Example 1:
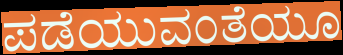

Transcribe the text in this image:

ಪಡೆಯುವಂತೆಯೂ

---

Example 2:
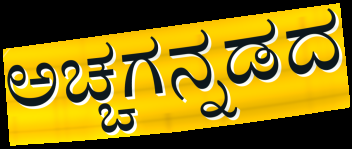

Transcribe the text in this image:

ಅಚ್ಚಗನ್ನಡದ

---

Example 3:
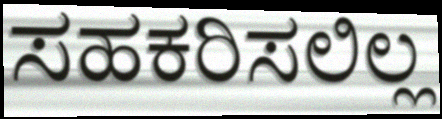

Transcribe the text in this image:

ಸಹಕರಿಸಲಿಲ್ಲ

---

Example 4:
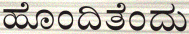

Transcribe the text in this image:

ಹೊಂದಿತೆಂದು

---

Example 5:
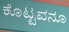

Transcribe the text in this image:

ಕೊಟ್ಟವನೂ